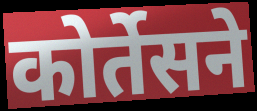
कोर्तेसने